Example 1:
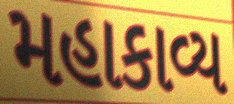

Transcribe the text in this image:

મહાકાવ્ય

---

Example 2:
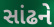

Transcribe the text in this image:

સાંઢને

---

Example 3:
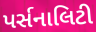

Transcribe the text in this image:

પર્સનાલિટી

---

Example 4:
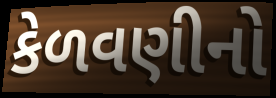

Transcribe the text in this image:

કેળવણીનો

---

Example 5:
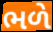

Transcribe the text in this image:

ભળે